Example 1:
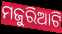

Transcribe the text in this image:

ମଜୁରିଆଟି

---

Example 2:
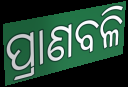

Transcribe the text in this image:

ପ୍ରାଣବଳି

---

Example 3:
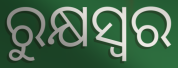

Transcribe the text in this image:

ରୁକ୍ଷସ୍ୱର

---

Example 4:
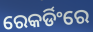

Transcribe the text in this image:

ରେକର୍ଡିଂରେ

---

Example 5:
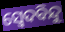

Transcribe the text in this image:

ସ୍ଵେଦବିନ୍ଦୁ